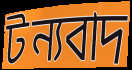
টন্যবাদ